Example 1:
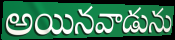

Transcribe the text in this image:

అయినవాడును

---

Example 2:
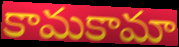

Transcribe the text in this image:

కామకామా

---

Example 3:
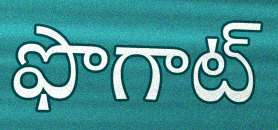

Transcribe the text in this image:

ఫొగాట్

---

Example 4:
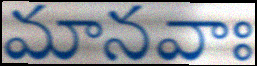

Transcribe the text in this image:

మానవాః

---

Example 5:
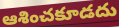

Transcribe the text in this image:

ఆశించకూడదు